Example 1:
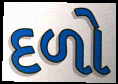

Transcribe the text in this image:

દળો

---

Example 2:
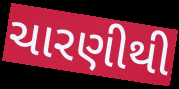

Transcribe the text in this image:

ચારણીથી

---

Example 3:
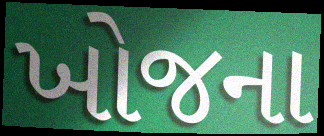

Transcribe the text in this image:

ખોજના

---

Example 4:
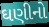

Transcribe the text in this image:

ઘણીનો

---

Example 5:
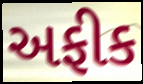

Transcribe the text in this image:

અફીક